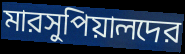
মারসুপিয়ালদের